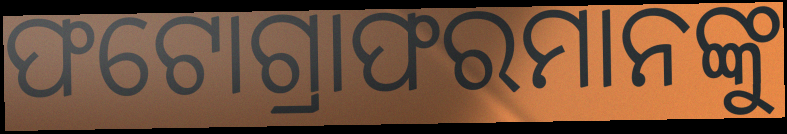
ଫଟୋଗ୍ରାଫରମାନଙ୍କୁ